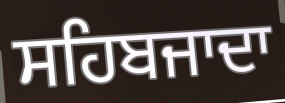
ਸਹਿਬਜਾਦਾ